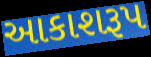
આકાશરૂપ